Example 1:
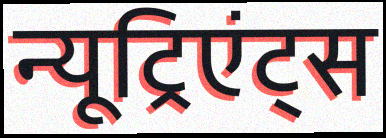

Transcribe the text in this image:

न्यूट्रिएंट्स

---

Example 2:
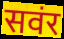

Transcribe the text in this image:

सवंर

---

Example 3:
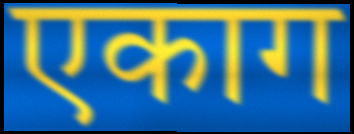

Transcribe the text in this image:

एकाग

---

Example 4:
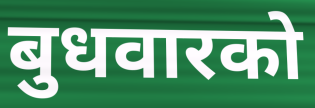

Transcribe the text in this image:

बुधवारको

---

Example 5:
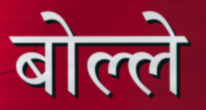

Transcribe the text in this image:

बोल्ले